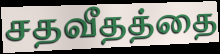
சதவீதத்தை